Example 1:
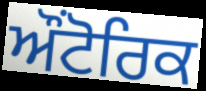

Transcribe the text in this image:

ਔਂਟੋਰਿਕ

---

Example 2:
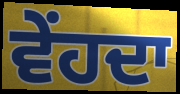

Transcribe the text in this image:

ਵੇਂਹਦਾ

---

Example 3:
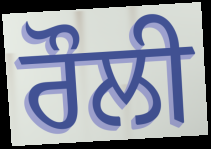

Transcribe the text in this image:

ਰੌਲੀ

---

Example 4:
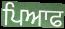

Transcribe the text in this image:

ਪਿਆਫ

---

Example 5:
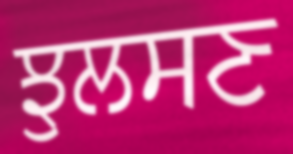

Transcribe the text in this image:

ਝੁਲਸਣ